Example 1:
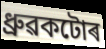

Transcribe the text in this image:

ধ্ৰুৱকটোৰ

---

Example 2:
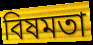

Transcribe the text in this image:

বিষমতা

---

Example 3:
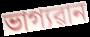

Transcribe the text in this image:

ভাগ্যৱান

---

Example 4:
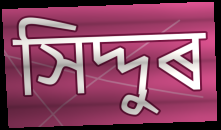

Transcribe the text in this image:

সিদ্দুৰ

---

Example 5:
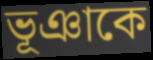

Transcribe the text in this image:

ভূঞাকে